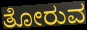
ತೋರುವ